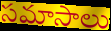
సమాసాలు